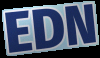
EDN